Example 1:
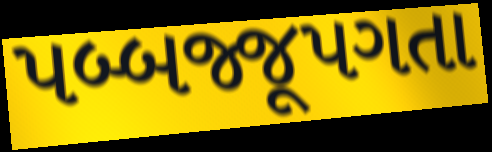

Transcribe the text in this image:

પબ્બજ્જૂપગતા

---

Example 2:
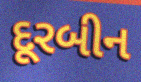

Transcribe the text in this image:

દૂરબીન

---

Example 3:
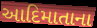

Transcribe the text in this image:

આદિમાતાના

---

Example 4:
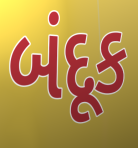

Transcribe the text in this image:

બંદૂક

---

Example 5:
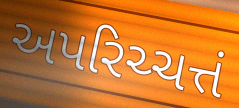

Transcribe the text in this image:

અપરિચ્ચત્તં